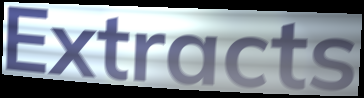
Extracts